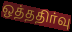
ஒத்ததிர்வு